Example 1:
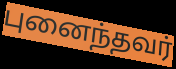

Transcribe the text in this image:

புனைந்தவர்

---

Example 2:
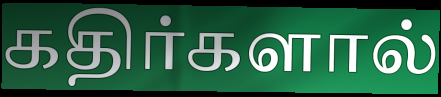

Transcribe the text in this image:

கதிர்களால்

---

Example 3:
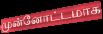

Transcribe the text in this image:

முன்னோட்டமாக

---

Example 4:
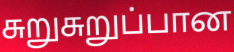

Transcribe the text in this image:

சுறுசுறுப்பான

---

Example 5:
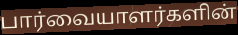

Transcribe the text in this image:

பார்வையாளர்களின்